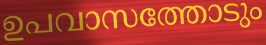
ഉപവാസത്തോടും